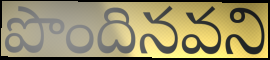
పొందినవని